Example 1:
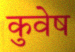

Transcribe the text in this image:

कुवेष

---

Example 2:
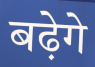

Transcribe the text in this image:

बढ़ेगे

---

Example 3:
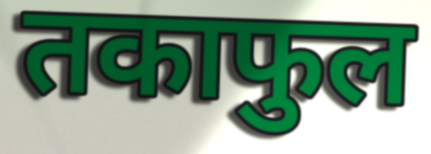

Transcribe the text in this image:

तकाफुल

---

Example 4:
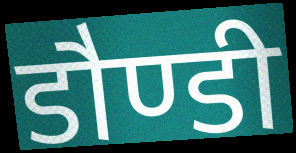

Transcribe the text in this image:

डौण्डी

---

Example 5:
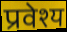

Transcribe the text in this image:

प्रवेश्य